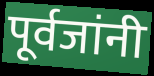
पूर्वजांनी